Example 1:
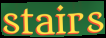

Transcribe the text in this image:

stairs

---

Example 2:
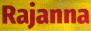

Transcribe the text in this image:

Rajanna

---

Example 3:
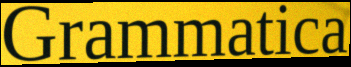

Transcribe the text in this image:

Grammatica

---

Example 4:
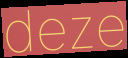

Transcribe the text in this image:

deze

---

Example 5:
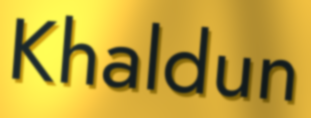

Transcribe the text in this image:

Khaldun